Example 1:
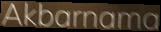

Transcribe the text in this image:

Akbarnama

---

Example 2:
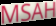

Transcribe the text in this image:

MSAH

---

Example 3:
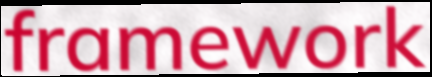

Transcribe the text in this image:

framework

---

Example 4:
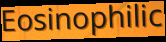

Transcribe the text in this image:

Eosinophilic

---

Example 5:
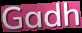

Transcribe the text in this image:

Gadh